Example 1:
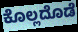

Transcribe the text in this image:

ಕೊಲ್ಲದೊಡೆ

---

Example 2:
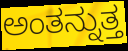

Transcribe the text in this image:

ಅಂತನ್ನುತ್ತ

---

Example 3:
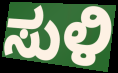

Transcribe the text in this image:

ಸುಳಿ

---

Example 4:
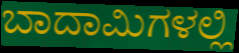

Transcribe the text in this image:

ಬಾದಾಮಿಗಳಲ್ಲಿ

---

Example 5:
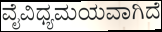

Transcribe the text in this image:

ವೈವಿಧ್ಯಮಯವಾಗಿದೆ